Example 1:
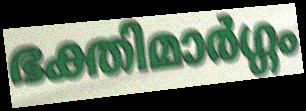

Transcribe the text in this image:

ഭക്തിമാർഗ്ഗം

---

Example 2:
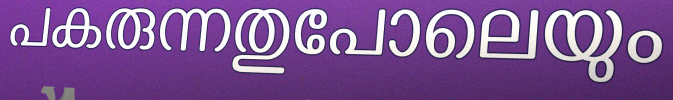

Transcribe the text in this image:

പകരുന്നതുപോലെയും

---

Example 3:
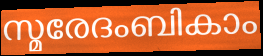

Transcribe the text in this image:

സ്മരേദംബികാം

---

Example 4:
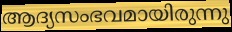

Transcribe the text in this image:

ആദ്യസംഭവമായിരുന്നു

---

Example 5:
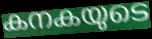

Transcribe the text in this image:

കനകയുടെ